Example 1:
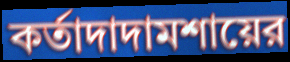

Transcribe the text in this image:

কর্তাদাদামশায়ের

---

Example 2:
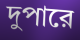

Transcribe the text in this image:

দুপারে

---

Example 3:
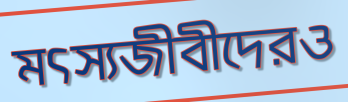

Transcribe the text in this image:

মৎস্যজীবীদেরও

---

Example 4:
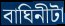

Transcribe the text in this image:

বাঘিনীটা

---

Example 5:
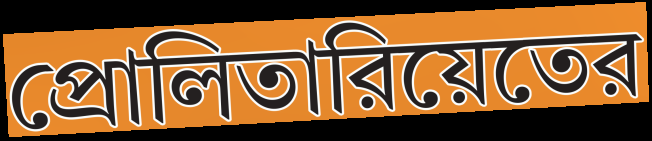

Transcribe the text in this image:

প্রোলিতারিয়েতের